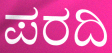
ಪರದಿ